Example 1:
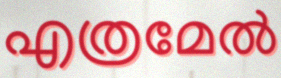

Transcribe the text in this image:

എത്രമേൽ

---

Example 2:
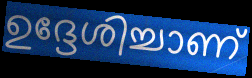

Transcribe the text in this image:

ഉദ്ദേശിച്ചാണ്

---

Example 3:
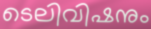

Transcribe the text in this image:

ടെലിവിഷനും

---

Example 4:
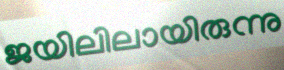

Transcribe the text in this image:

ജയിലിലായിരുന്നു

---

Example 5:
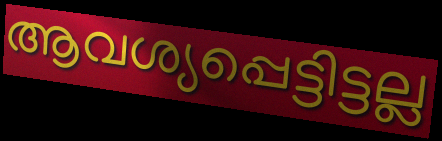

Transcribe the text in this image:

ആവശ്യപ്പെട്ടിട്ടല്ല